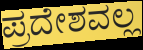
ಪ್ರದೇಶವಲ್ಲ